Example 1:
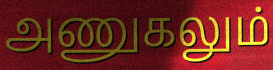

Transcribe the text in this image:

அணுகலும்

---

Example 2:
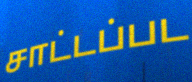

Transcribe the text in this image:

சாட்டப்பட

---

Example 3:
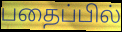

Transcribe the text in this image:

பதைப்பில்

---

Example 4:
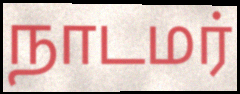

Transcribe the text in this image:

நாடமர்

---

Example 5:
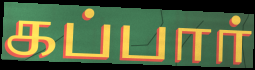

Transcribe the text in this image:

கப்பார்